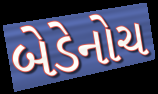
બેડેનોચ